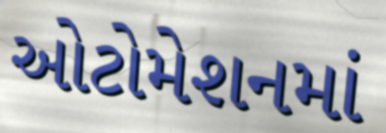
ઓટોમેશનમાં